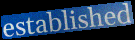
established